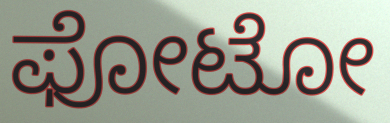
ಫೋಟೋ